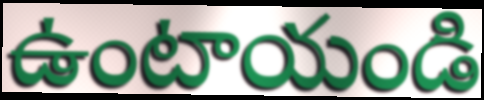
ఉంటాయండి